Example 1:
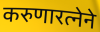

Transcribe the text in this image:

करुणारत्नेने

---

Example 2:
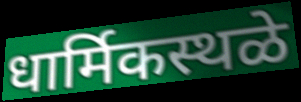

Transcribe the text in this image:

धार्मिकस्थळे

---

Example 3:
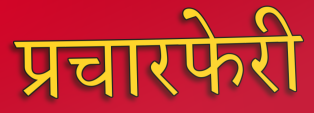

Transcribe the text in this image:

प्रचारफेरी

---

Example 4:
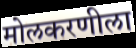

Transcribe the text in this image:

मोलकरणीला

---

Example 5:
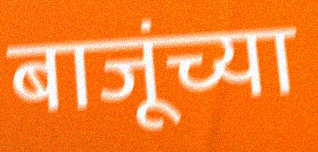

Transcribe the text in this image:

बाजूंच्या